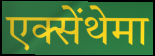
एक्सेंथेमा